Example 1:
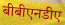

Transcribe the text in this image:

बीबीएनडीए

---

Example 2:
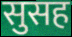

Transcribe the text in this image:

सुसह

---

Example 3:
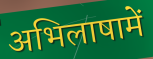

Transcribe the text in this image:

अभिलाषामें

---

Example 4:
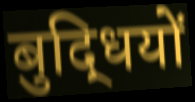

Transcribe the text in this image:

बुद्धियों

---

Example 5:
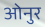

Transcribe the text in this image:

ओनुर